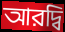
আরদ্বি